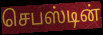
செபஸ்டின்